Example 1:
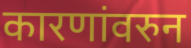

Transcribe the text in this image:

कारणांवरुन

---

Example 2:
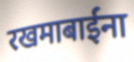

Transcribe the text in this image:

रखमाबाईंना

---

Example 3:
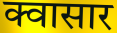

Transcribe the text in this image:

क्वासार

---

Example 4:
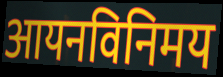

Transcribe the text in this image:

आयनविनिमय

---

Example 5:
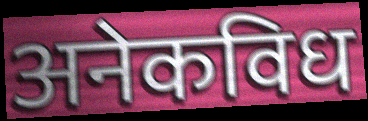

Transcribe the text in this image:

अनेकविध